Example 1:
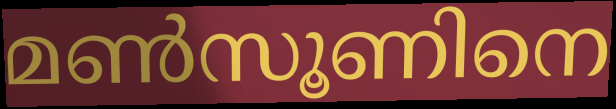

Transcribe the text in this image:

മൺസൂണിനെ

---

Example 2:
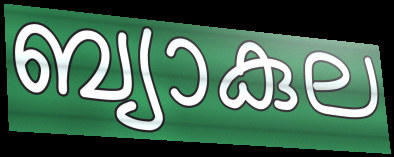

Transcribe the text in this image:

ബ്യാകുല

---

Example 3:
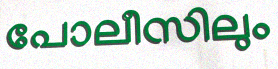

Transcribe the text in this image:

പോലീസിലും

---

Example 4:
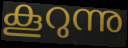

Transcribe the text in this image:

കൂറുന്നു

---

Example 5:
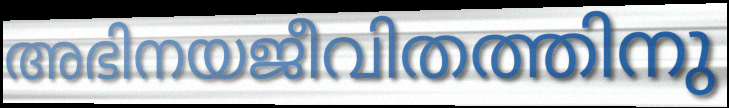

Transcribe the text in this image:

അഭിനയജീവിതത്തിനു